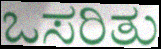
ಒಸರಿತು